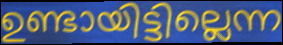
ഉണ്ടായിട്ടില്ലെന്ന